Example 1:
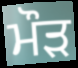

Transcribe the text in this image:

ਮੌਡ਼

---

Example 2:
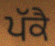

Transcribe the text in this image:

ਪੱਕੈ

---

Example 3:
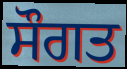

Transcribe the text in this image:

ਸੌਗਤ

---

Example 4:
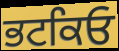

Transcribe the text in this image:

ਭਟਕਿਓ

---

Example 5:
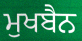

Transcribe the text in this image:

ਮੁਖਬੈਨ